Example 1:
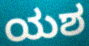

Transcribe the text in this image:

ಯಶ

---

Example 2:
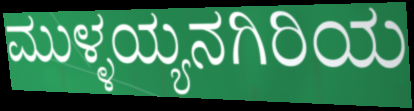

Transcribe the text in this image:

ಮುಳ್ಳಯ್ಯನಗಿರಿಯ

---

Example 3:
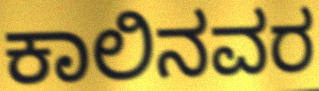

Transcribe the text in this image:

ಕಾಲಿನವರ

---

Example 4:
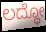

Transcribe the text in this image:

ಲದ್ಧೋ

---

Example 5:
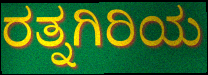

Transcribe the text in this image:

ರತ್ನಗಿರಿಯ